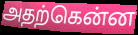
அதற்கென்ன